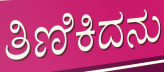
ತಿಣಿಕಿದನು